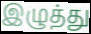
இழுத்து